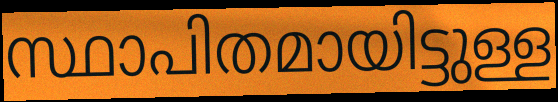
സ്ഥാപിതമായിട്ടുള്ള